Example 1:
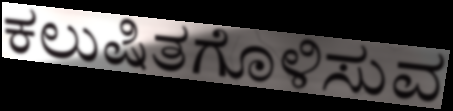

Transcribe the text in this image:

ಕಲುಷಿತಗೊಳಿಸುವ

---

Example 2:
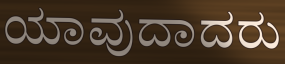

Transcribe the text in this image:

ಯಾವುದಾದರು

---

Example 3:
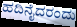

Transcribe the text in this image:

ಹದಿನೈದರಂದು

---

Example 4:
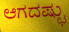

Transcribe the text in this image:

ಆಗದಷ್ಟು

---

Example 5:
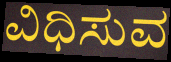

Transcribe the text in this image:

ವಿಧಿಸುವ